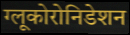
ग्लूकोरोनिडेशन